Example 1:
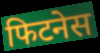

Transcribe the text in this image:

फिटनेस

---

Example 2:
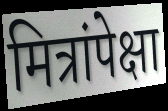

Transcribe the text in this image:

मित्रांपेक्षा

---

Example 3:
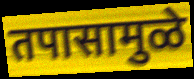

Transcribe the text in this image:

तपासामुळे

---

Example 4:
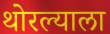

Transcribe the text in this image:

थोरल्याला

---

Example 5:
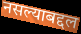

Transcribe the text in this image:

नसल्याबद्दल